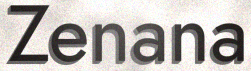
Zenana